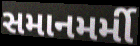
સમાનમર્મી